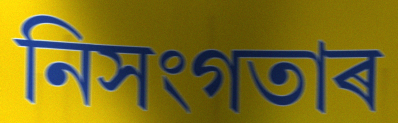
নিসংগতাৰ